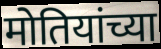
मोतियांच्या